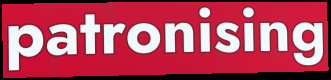
patronising